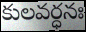
కులవర్ధనః